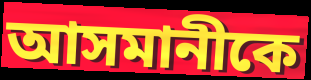
আসমানীকে